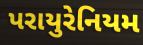
પરાયુરેનિયમ